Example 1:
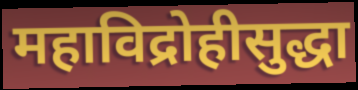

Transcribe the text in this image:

महाविद्रोहीसुद्धा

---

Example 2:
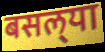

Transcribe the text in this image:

बसल्या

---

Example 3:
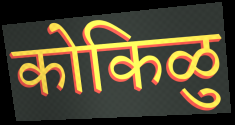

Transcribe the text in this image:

कोकिळु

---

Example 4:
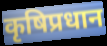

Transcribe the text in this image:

कृषिप्रधान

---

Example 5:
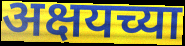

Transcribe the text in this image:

अक्षयच्या